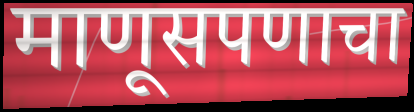
माणूसपणाचा